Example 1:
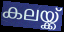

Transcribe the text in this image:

കലയ്ക്ക്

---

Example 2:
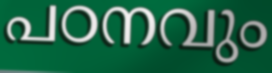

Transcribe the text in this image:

പഠനവും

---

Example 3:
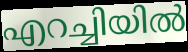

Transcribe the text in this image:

എറച്ചിയിൽ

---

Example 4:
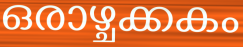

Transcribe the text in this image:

ഒരാഴ്ചക്കകം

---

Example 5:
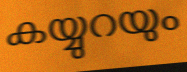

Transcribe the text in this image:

കയ്യുറയും